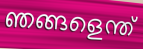
ഞങ്ങളെന്ത്